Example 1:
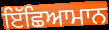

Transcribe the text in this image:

ਇੱਛਿਆਮਾਨ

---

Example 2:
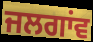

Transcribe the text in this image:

ਜਲਗਾਂਵ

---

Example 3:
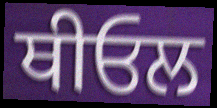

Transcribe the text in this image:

ਥੀਓਲ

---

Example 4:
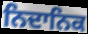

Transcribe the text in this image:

ਨਿਦਾਨਿਕ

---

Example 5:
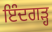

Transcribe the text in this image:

ਇੰਦਗੜ੍ਹ